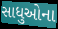
સાધુઓના